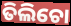
ତିଲିଚୋ